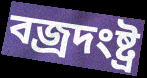
বজ্রদংষ্ট্র